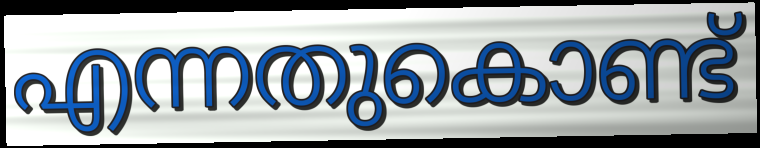
എന്നതുകൊണ്ട്